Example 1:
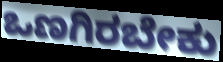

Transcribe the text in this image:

ಒಣಗಿರಬೇಕು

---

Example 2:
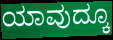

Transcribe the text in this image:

ಯಾವುದ್ಕೂ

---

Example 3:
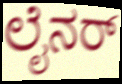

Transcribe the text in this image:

ಲೈನರ್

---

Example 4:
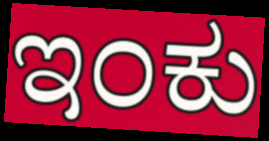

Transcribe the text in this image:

ಇಂಕು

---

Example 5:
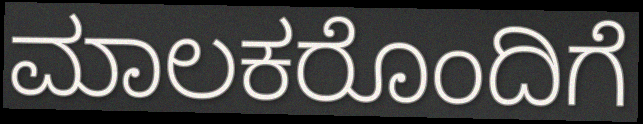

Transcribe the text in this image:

ಮಾಲಕರೊಂದಿಗೆ